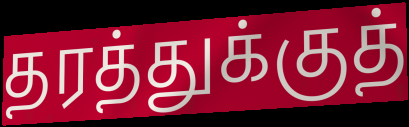
தரத்துக்குத்